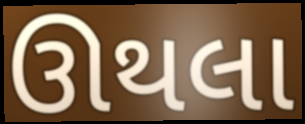
ઊથલા